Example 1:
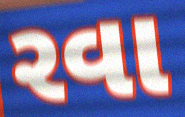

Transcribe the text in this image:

રવા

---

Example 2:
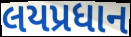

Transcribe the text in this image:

લયપ્રધાન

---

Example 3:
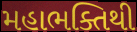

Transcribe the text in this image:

મહાભક્તિથી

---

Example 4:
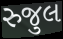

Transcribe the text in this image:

રુજુલ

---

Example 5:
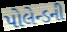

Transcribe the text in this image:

પોલેન્ડની